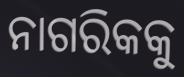
ନାଗରିକକୁ